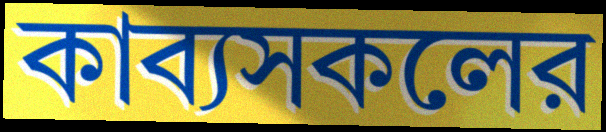
কাব্যসকলের